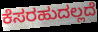
ಕೆಸರಹುದಲ್ಲದೆ